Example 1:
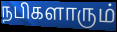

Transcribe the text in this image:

நபிகளாரும்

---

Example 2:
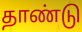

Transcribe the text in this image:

தாண்டு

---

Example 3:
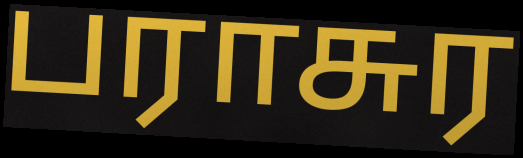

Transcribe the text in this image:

பராசுர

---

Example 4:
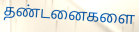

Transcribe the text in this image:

தண்டனைகளை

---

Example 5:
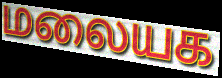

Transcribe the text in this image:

மலையக